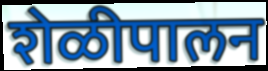
शेळीपालन